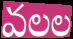
వలల